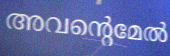
അവന്റെമേൽ